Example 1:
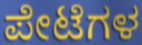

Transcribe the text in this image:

ಪೇಟೆಗಳ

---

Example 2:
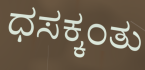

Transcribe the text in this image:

ಧಸಕ್ಕಂತು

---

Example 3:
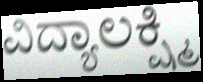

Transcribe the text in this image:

ವಿದ್ಯಾಲಕ್ಷ್ಮಿ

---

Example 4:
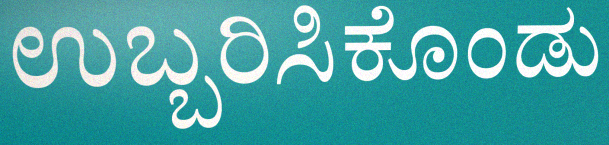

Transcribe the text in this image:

ಉಬ್ಬರಿಸಿಕೊಂಡು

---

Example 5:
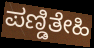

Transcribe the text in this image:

ಪಣ್ಡಿತೇಹಿ